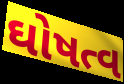
ઘોષત્વ